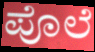
ಪೊಲೆ